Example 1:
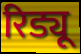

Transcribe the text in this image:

रिड्यू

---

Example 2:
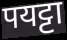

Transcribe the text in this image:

पयट्टा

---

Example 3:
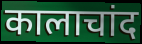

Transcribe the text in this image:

कालाचांद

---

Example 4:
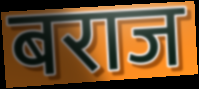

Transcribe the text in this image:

बराज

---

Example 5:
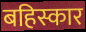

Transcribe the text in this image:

बहिस्कार